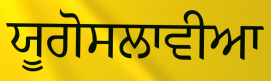
ਯੂਗੋਸਲਾਵੀਆ